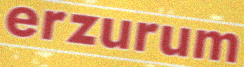
erzurum